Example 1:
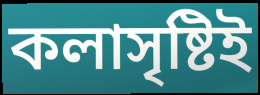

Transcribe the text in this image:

কলাসৃষ্টিই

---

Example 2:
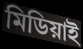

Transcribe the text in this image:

মিডিয়াই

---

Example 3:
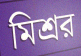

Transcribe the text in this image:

মিশ্রর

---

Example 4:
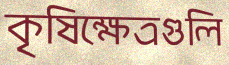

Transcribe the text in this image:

কৃষিক্ষেত্রগুলি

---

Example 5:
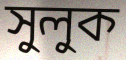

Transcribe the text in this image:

সুলুক